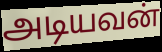
அடியவன்